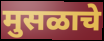
मुसळाचे